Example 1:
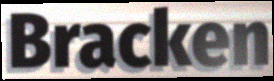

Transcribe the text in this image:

Bracken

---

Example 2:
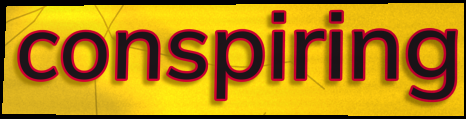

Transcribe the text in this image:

conspiring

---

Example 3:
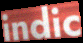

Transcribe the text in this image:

indic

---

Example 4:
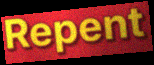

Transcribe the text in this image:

Repent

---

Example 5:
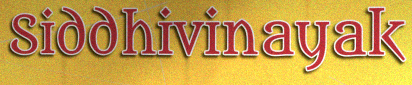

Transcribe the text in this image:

Siddhivinayak